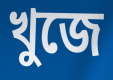
খুজে